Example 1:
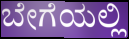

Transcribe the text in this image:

ಬೇಗೆಯಲ್ಲಿ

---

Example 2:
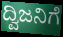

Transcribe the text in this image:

ದ್ವಿಜನಿಗೆ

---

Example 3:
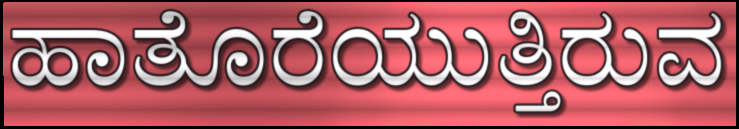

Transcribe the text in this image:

ಹಾತೊರೆಯುತ್ತಿರುವ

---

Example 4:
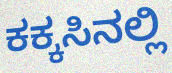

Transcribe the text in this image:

ಕಕ್ಕಸಿನಲ್ಲಿ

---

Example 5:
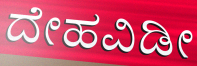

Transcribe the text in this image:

ದೇಹವಿಡೀ